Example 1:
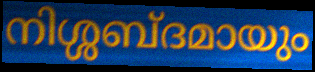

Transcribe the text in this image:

നിശ്ശബ്ദമായും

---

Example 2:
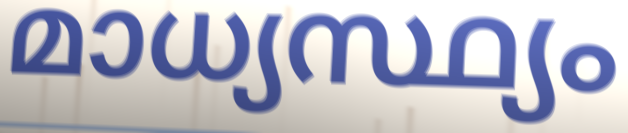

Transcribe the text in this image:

മാധ്യസ്ഥ്യം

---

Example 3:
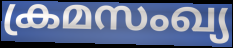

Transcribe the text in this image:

ക്രമസംഖ്യ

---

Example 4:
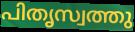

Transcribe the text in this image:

പിതൃസ്വത്തു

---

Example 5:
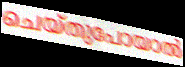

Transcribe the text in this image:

ചെയ്തുപോയാൽ